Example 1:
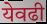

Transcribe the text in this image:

येवढी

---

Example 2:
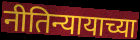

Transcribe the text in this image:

नीतिन्यायाच्या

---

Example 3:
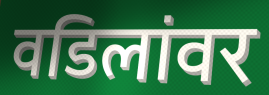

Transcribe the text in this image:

वडिलांवर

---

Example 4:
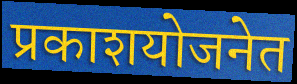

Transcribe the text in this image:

प्रकाशयोजनेत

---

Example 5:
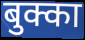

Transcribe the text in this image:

बुक्का